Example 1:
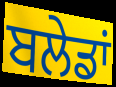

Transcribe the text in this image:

ਬਲੇਡਾਂ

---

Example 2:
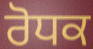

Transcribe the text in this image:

ਰੋਧਕ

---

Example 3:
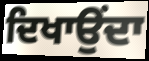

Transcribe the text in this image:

ਦਿਖਾਉਂਦਾ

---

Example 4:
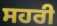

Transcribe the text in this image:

ਸਹਰੀ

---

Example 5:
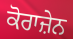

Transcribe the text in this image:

ਕੋਰਾਜ਼ੇਨ